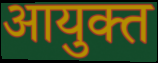
आयुक्त